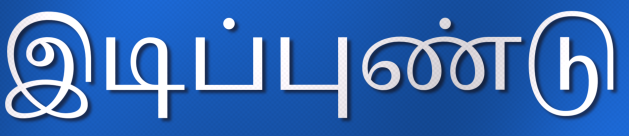
இடிப்புண்டு